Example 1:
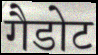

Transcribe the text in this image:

गैडोट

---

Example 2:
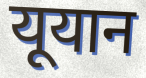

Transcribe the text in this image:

यूयान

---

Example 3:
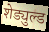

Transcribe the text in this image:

शेड्युल्ड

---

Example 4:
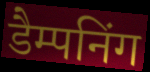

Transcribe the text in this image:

डैम्पनिंग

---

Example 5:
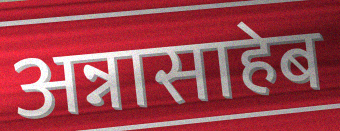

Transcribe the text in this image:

अन्नासाहेब